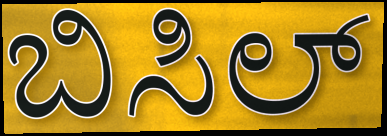
ಬಿಸಿಲ್